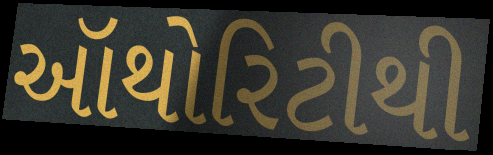
ઑથોરિટીથી